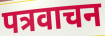
पत्रवाचन